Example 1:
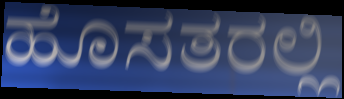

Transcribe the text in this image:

ಹೊಸತರಲ್ಲಿ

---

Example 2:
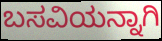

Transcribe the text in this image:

ಬಸವಿಯನ್ನಾಗಿ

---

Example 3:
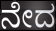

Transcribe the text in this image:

ನೇದ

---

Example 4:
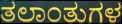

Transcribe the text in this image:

ತಲಾಂತುಗಳ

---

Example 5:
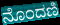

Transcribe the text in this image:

ನೊಂದಣಿ